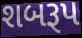
શબરૂપ